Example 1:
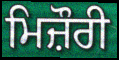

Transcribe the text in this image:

ਮਿਜ਼ੌਰੀ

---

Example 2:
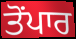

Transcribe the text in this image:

ਤੋਂਪਾਰ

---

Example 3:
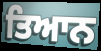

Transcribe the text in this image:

ਤਿਆਨ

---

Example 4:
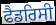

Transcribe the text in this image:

ਫੈਡਰਿਸੀ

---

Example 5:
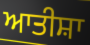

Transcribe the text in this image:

ਆਤੀਸ਼ਾ